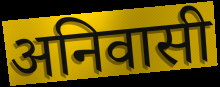
अनिवासी